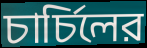
চার্চিলের